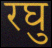
रघु